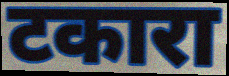
टकारा